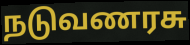
நடுவணரசு